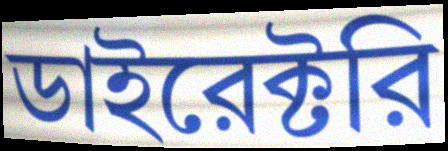
ডাইরেক্টরি